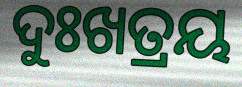
ଦୁଃଖତ୍ରୟ